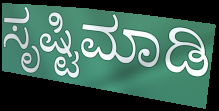
ಸೃಷ್ಟಿಮಾಡಿ